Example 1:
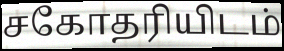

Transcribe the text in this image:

சகோதரியிடம்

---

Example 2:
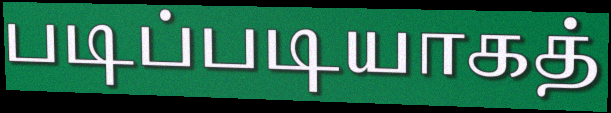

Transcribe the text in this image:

படிப்படியாகத்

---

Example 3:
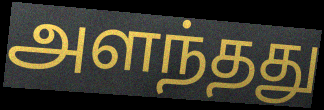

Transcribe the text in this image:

அளந்தது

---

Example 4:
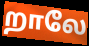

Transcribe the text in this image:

றாலே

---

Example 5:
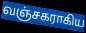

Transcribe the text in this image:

வஞ்சகராகிய